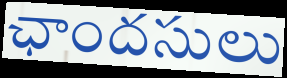
ఛాందసులు